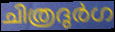
ചിത്രദുർഗ